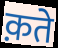
क़ते